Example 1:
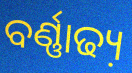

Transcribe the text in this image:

ବର୍ଣ୍ଣାଢ୍ୟ଼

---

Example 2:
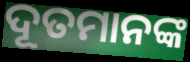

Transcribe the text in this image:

ଦୂତମାନଙ୍କ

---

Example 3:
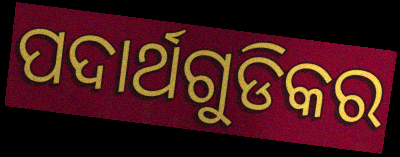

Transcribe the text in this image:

ପଦାର୍ଥଗୁଡିକର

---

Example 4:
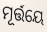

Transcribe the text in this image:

ମୂର୍ତ୍ତୟେ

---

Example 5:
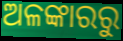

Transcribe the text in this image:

ଅଳଙ୍କାରରୁ